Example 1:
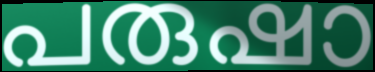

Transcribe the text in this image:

പരുഷാ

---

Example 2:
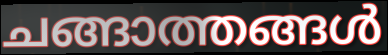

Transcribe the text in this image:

ചങ്ങാത്തങ്ങൾ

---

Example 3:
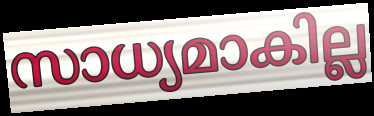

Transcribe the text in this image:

സാധ്യമാകില്ല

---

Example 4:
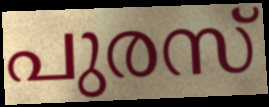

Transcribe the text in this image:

പുരസ്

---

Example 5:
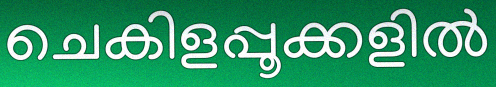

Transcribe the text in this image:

ചെകിളപ്പൂക്കളിൽ